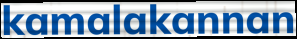
kamalakannan